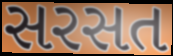
સરસત